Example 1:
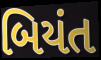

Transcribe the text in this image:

બિયંત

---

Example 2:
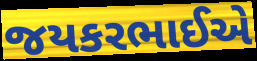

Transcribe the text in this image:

જયકરભાઈએ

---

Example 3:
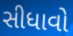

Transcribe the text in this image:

સીધાવો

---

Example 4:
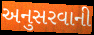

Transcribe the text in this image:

અનુસરવાની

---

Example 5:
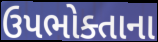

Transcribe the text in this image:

ઉપભોક્તાના